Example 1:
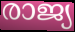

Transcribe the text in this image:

രാജ്യ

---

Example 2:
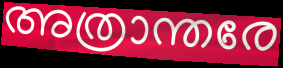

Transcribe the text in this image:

അത്രാന്തരേ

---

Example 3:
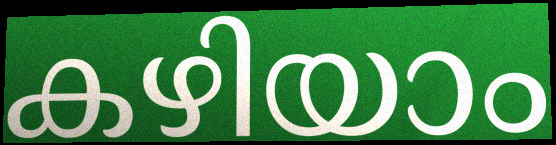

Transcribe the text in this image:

കഴിയാം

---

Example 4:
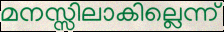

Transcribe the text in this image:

മനസ്സിലാകില്ലെന്ന്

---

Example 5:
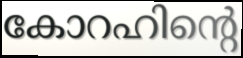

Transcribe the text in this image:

കോറഹിന്റെ